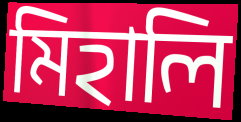
মিহালি